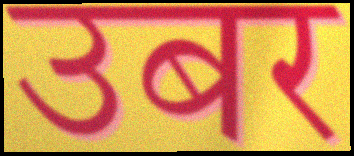
उबर